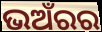
ଭଅଁରର